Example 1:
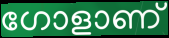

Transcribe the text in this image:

ഗോളാണ്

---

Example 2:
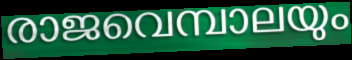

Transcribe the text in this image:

രാജവെമ്പാലയും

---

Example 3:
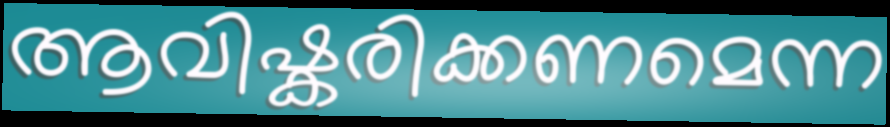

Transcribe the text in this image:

ആവിഷ്കരിക്കണമെന്ന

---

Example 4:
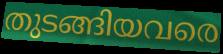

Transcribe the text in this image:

തുടങ്ങിയവരെ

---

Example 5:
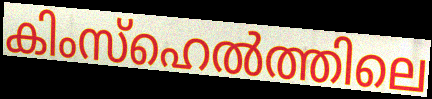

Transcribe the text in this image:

കിംസ്ഹെൽത്തിലെ